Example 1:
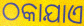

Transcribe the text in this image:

ଠକାଯାଏ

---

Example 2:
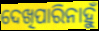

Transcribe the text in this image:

ଦେଖିପାରିନାହୁଁ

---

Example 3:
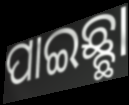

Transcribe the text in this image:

ପାଇଛ୍ଛା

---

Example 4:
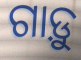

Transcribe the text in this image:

ଗାଡ଼ୁ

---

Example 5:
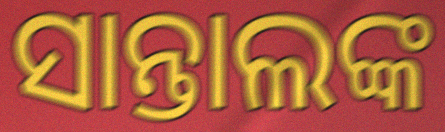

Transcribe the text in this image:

ସାନ୍ତାଲଙ୍କ